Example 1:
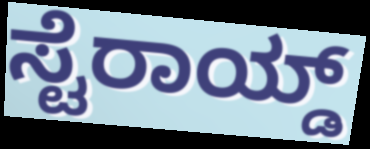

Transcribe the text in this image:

ಸ್ಟೆರಾಯ್ಡ್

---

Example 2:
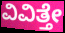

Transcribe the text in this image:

ವಿವಿತ್ತೇ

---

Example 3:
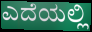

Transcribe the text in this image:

ಎದೆಯಲ್ಲಿ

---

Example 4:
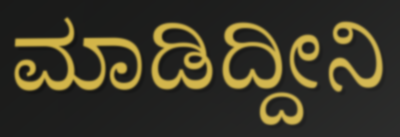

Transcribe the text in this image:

ಮಾಡಿದ್ದೀನಿ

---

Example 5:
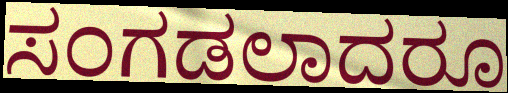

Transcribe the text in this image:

ಸಂಗಡಲಾದರೂ